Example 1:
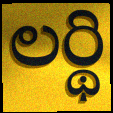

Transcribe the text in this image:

లర్థి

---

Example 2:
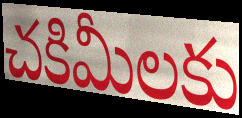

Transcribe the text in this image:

చకిమీలకు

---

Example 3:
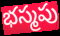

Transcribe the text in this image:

భస్మపు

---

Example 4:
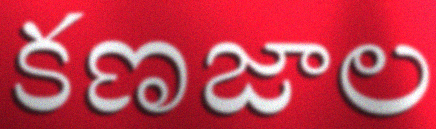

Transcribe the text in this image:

కణజాల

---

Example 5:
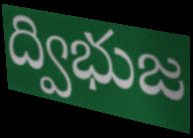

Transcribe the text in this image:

ద్విభుజ